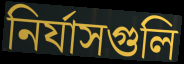
নির্যাসগুলি